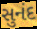
સુનંદ